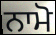
ਨਾਮੋ